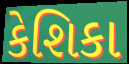
કેશિકા